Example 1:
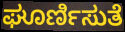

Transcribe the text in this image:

ಘೂರ್ಣಿಸುತೆ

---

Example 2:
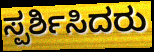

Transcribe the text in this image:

ಸ್ಪರ್ಶಿಸಿದರು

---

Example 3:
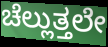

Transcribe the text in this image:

ಚೆಲ್ಲುತ್ತಲೇ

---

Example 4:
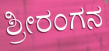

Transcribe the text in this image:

ಶ್ರೀರಂಗನ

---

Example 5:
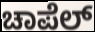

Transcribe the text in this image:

ಚಾಪೆಲ್